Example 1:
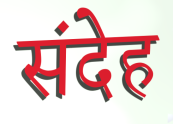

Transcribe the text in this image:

संदेह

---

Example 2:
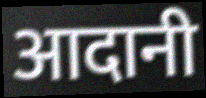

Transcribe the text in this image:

आदानी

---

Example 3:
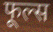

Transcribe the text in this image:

फूल्स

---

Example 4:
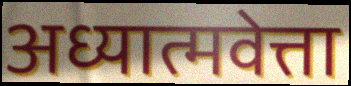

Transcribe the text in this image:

अध्यात्मवेत्ता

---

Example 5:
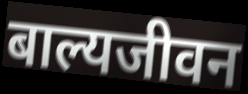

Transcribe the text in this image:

बाल्यजीवन